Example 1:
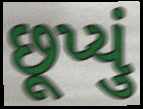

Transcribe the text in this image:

છૂપ્યું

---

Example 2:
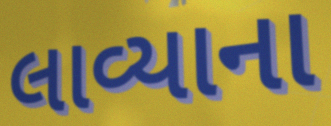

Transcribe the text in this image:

લાવ્યાના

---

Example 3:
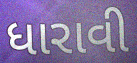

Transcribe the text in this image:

ધારાવી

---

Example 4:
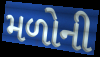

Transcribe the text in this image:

મળોની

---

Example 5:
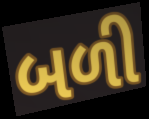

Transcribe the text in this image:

બળી